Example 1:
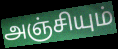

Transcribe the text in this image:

அஞ்சியும்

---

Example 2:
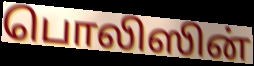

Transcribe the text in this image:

பொலிஸின்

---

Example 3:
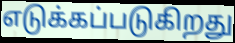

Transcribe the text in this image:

எடுக்கப்படுகிறது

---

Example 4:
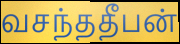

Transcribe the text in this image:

வசந்ததீபன்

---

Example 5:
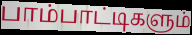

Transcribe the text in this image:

பாம்பாட்டிகளும்